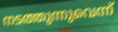
നടത്തുന്നുവെന്ന്